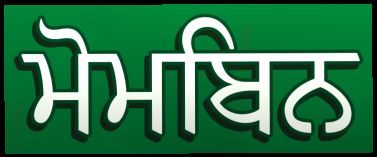
ਮੋਮਬਿਨ